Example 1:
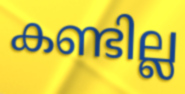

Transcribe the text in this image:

കണ്ടില്ല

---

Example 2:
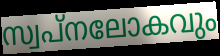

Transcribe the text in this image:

സ്വപ്നലോകവും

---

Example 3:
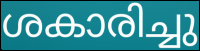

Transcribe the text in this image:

ശകാരിച്ചു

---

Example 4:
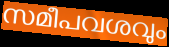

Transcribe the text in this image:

സമീപവശവും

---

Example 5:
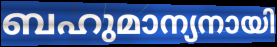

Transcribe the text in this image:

ബഹുമാന്യനായി